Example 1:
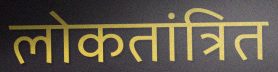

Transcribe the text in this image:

लोकतांत्रित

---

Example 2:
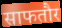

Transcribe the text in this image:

साफतौर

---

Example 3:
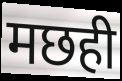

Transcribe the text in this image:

मछही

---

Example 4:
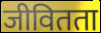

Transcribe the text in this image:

जीवितता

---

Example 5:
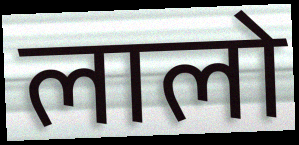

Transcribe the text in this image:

लालो